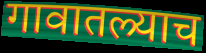
गावातल्याच